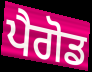
ਪੈਗੋਡ